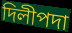
দিলীপদা